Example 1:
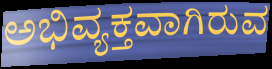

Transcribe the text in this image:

ಅಭಿವ್ಯಕ್ತವಾಗಿರುವ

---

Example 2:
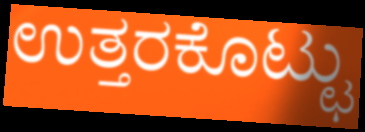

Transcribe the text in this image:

ಉತ್ತರಕೊಟ್ಟು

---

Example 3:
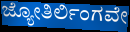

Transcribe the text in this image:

ಜ್ಯೋತಿರ್ಲಿಂಗವೇ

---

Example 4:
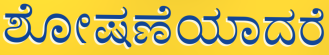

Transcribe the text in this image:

ಶೋಷಣೆಯಾದರೆ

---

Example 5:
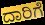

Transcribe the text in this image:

ದಾರಿಗೆ